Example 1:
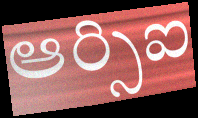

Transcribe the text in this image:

ఆర్సిఐ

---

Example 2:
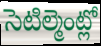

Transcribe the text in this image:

సెటిల్మెంట్లో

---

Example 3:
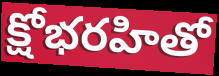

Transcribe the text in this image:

క్షోభరహితో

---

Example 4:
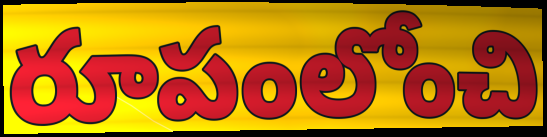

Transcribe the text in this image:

రూపంలోంచి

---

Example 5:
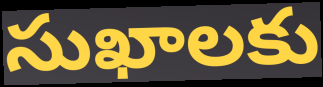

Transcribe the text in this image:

సుఖాలకు